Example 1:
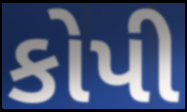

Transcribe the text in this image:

કોપી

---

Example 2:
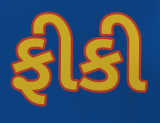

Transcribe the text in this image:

ફીકી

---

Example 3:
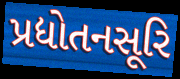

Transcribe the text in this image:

પ્રદ્યોતનસૂરિ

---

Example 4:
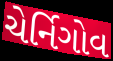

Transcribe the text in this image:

ચેર્નિગોવ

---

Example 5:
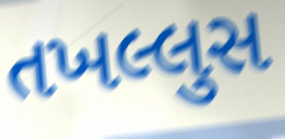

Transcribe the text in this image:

તખલ્લુસ